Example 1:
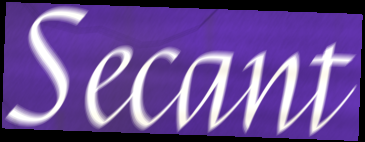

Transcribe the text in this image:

Secant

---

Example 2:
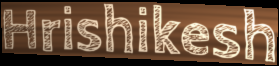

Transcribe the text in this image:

Hrishikesh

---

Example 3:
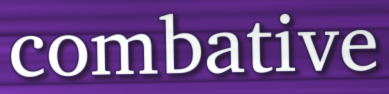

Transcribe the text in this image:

combative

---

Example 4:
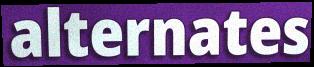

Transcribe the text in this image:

alternates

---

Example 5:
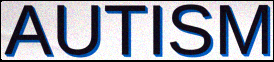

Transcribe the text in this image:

AUTISM